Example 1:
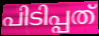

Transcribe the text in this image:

പിടിപ്പത്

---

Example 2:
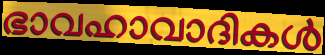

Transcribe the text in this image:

ഭാവഹാവാദികൾ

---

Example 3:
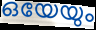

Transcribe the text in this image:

ഒയേയും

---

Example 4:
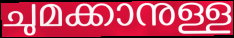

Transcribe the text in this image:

ചുമക്കാനുള്ള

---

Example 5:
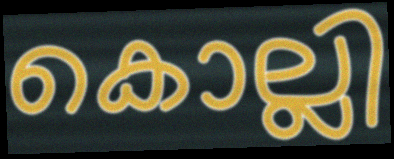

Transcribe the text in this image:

കൊല്ലി